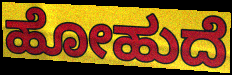
ಹೋಹುದೆ